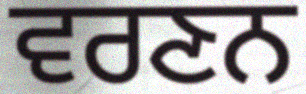
ਵਰਣਨ